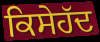
ਕਿਸੇਹੱਦ